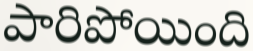
పారిపోయింది